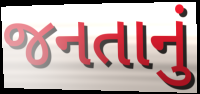
જનતાનું